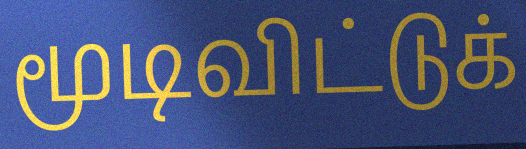
மூடிவிட்டுக்